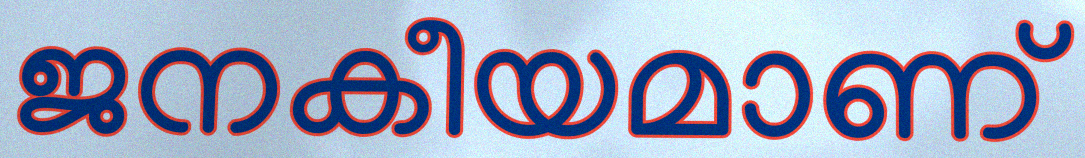
ജനകീയമാണ്